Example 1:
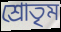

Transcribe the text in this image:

শ্রোতৃম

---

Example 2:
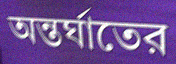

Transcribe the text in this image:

অন্তর্ঘাতের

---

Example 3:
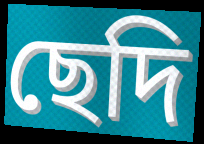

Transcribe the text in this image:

ছেদি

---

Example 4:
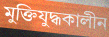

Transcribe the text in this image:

মুক্তিযুদ্ধকালীন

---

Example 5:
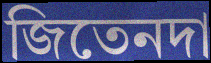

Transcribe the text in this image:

জিতেনদা